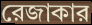
রেজাকার